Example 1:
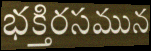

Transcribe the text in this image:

భక్తిరసమున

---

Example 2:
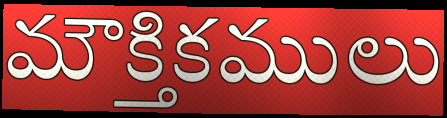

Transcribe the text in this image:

మౌక్తికములు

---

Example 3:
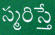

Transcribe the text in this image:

స్మరిస్తే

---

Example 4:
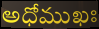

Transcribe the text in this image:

అధోముఖః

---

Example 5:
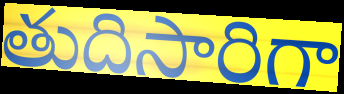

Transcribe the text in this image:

తుదిసారిగా